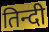
तिन्दी